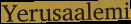
Yerusaalemi